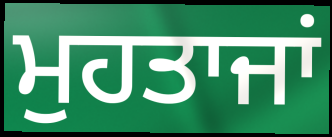
ਮੁਹਤਾਜਾਂ